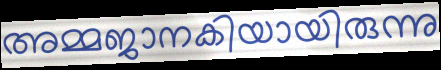
അമ്മജാനകിയായിരുന്നു